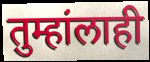
तुम्हांलाही